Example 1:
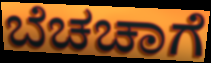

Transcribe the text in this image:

ಬೆಚಚಾಗೆ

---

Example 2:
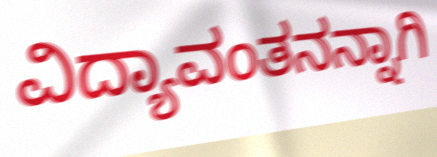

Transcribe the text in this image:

ವಿದ್ಯಾವಂತನನ್ನಾಗಿ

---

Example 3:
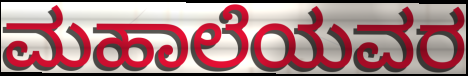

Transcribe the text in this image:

ಮಹಾಲೆಯವರ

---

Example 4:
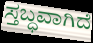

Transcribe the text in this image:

ಸ್ತಬ್ಧವಾಗಿದೆ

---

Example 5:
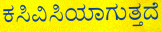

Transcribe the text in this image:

ಕಸಿವಿಸಿಯಾಗುತ್ತದೆ